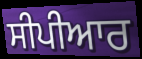
ਸੀਪੀਆਰ